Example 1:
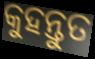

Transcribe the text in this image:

କୁହନ୍ତୁତ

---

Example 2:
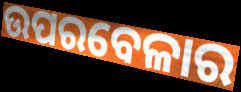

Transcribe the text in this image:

ଉପରବେଳାର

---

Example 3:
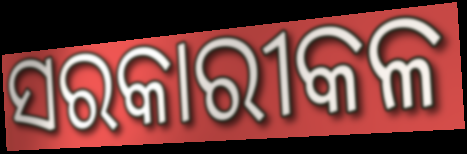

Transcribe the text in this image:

ସରକାରୀକଳ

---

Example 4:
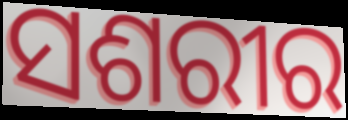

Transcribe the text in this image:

ସଶରୀର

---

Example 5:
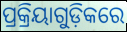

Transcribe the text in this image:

ପ୍ରକ୍ରିୟାଗୁଡ଼ିକରେ